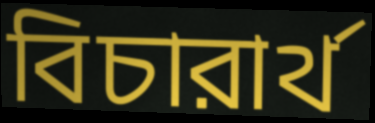
বিচারার্থ